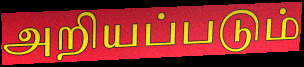
அறியப்படும்